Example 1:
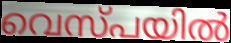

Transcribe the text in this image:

വെസ്പയിൽ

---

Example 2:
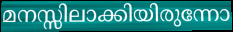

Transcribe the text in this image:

മനസ്സിലാക്കിയിരുന്നോ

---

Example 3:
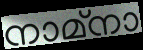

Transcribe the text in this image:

നാമ്നാ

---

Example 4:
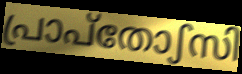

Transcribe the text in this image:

പ്രാപ്തോഽസി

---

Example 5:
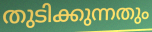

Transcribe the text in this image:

തുടിക്കുന്നതും